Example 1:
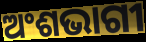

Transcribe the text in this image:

ଅଂଶଭାଗୀ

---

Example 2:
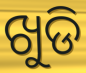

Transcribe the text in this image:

ଖୁଡି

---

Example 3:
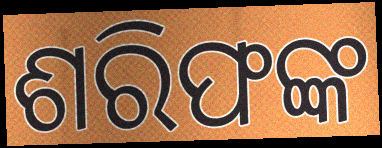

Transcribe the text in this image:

ଶରିଫଙ୍କ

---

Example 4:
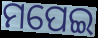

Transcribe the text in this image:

ମପେଇ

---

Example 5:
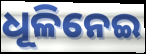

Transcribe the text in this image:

ଧୂଳିନେଇ